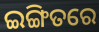
ଇଙ୍ଗିତରେ